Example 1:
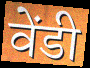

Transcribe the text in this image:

वेंडी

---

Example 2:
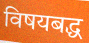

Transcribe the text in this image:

विषयबद्ध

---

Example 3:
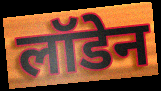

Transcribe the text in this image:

लॉडेन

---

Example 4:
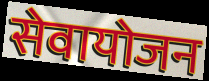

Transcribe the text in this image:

सेवायोजन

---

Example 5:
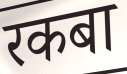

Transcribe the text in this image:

रकबा